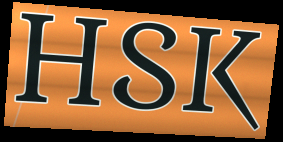
HSK